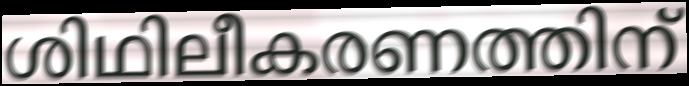
ശിഥിലീകരണത്തിന്